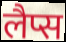
लैप्स